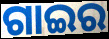
ଗାଇର